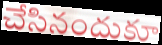
చేసినందుకూ